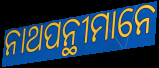
ନାଥପନ୍ଥୀମାନେ